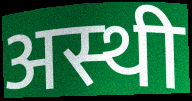
अस्थी